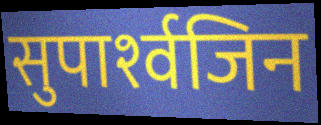
सुपार्श्वजिन